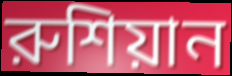
রুশিয়ান